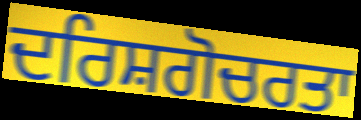
ਦਰਿਸ਼ਗੋਚਰਤਾ